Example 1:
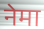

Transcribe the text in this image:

नेमा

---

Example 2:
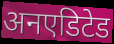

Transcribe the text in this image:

अनएडिटेड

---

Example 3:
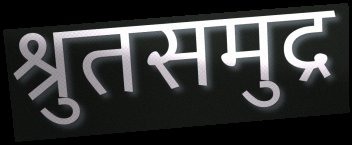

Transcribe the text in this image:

श्रुतसमुद्र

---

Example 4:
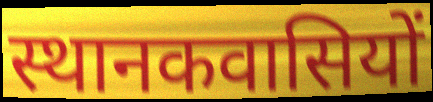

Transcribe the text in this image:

स्थानकवासियों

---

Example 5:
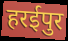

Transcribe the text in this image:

हरईपुर